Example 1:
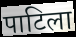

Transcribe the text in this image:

पाटिला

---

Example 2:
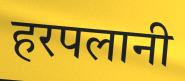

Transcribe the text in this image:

हरपलानी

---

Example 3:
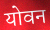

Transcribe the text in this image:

योवन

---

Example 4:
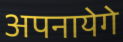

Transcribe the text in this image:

अपनायेगे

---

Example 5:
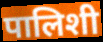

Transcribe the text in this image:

पालिशी